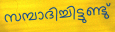
സമ്പാദിച്ചിട്ടുണ്ടു്